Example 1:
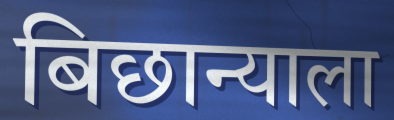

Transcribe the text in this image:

बिछान्याला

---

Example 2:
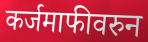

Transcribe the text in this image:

कर्जमाफीवरुन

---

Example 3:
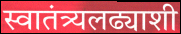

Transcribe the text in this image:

स्वातंत्र्यलढ्याशी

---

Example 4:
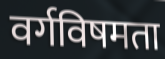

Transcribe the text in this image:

वर्गविषमता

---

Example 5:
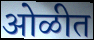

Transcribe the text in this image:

ओळीत